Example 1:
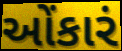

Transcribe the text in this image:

ઓંકારં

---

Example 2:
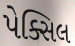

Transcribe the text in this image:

પેક્સિલ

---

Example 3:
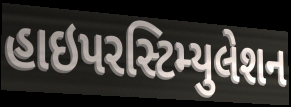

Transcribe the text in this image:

હાઇપરસ્ટિમ્યુલેશન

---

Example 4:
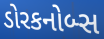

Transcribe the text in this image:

ડોરકનોબ્સ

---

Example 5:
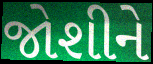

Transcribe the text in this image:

જોશીને